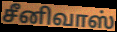
சீனிவாஸ்